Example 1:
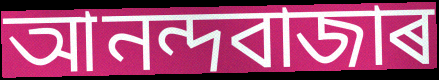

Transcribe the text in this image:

আনন্দবাজাৰ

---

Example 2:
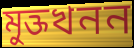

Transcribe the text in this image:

মুক্তখনন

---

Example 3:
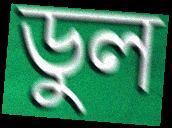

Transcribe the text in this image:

ডুল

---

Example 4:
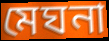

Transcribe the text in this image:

মেঘনা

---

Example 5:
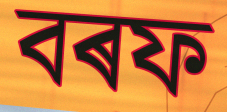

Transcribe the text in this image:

বৰফ